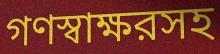
গণস্বাক্ষরসহ